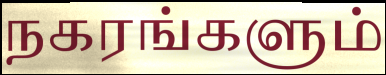
நகரங்களும்